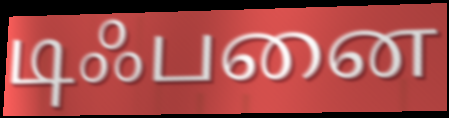
டிஃபனை